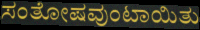
ಸಂತೋಷವುಂಟಾಯಿತು